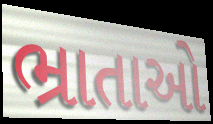
ભ્રાતાઓ